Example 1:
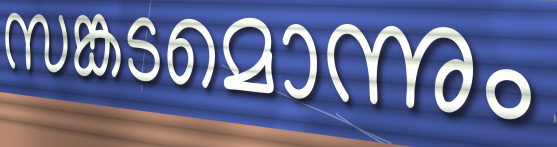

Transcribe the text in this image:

സങ്കടമൊന്നും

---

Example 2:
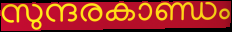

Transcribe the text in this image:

സുന്ദരകാണ്ഡം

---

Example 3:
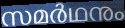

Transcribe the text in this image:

സമർഥനും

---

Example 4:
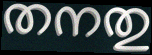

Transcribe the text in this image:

തനതു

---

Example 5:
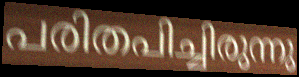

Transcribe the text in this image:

പരിതപിച്ചിരുന്നു